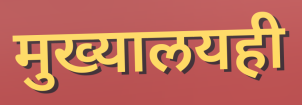
मुख्यालयही